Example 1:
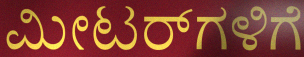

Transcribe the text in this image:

ಮೀಟರ್‌ಗಳಿಗೆ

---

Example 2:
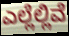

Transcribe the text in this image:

ಎಲ್ಲೆಲ್ಲಿವೆ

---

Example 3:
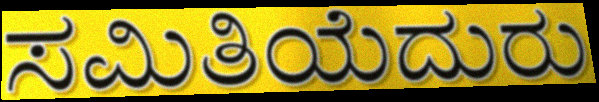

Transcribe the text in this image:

ಸಮಿತಿಯೆದುರು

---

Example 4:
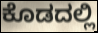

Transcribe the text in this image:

ಕೊಡದಲ್ಲಿ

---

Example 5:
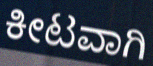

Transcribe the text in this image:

ಕೀಟವಾಗಿ